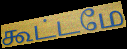
கூட்டமே